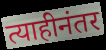
त्याहीनंतर